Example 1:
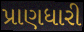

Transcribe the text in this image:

પ્રાણધારી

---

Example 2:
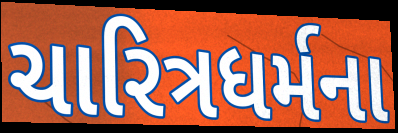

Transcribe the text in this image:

ચારિત્રધર્મના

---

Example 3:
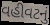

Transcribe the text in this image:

વહીવટનું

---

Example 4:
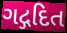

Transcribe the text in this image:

ગદ્ગદિત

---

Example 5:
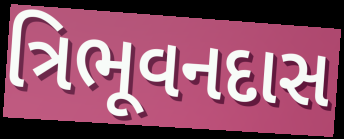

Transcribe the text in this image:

ત્રિભૂવનદાસ